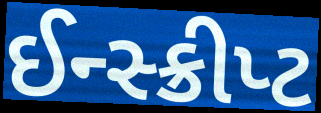
ઈન્સ્ક્રીપ્ટ